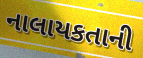
નાલાયકતાની